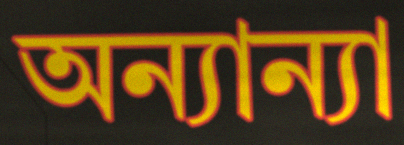
অন্যান্যা